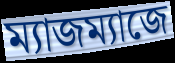
ম্যাজম্যাজে